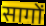
सागों